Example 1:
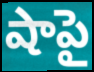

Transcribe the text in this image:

షాపై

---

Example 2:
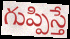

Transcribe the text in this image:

గుప్పిస్తే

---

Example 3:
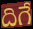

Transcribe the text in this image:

దిగే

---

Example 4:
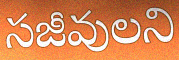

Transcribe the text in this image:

సజీవులని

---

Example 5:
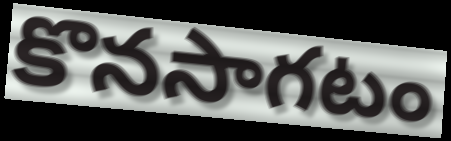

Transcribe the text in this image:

కొనసాగటం